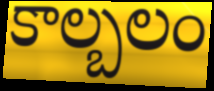
కాల్బలం